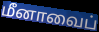
மீனாவைப்